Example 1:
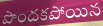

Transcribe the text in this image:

పొందకపోయిన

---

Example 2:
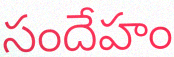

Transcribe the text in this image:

సందేహం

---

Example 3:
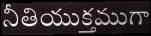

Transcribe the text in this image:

నీతియుక్తముగా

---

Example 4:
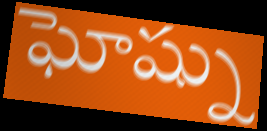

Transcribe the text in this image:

ఘోష్ను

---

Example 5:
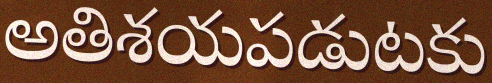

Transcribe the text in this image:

అతిశయపడుటకు